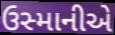
ઉસ્માનીએ